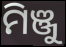
ମିଞ୍ଜୁ